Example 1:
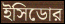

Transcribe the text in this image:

ইসিডোর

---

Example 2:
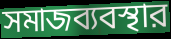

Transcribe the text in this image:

সমাজব্যবস্থার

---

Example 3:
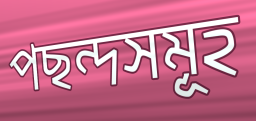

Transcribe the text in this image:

পছন্দসমূহ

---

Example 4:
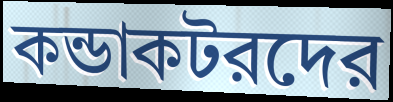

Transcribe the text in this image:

কন্ডাকটরদের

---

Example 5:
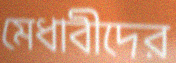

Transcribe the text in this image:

মেধাবীদের